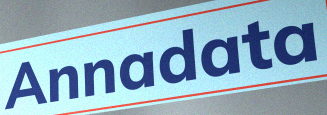
Annadata